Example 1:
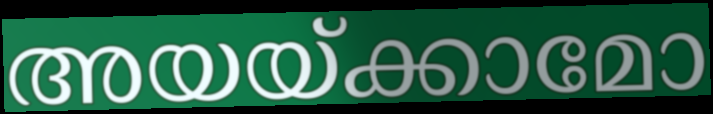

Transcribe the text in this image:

അയയ്ക്കാമോ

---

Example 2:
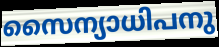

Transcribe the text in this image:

സൈന്യാധിപനു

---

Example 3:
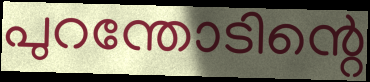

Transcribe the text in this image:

പുറന്തോടിന്റെ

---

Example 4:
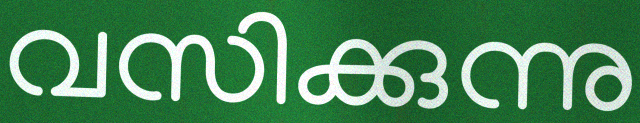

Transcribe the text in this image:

വസിക്കുന്നു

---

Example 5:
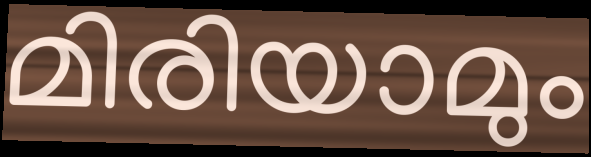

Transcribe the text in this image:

മിരിയാമും